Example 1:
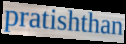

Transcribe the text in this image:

pratishthan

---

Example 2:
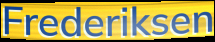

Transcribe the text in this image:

Frederiksen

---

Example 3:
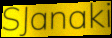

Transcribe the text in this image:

SJanaki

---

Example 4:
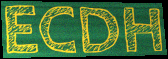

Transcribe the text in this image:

ECDH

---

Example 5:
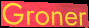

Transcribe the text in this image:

Groner